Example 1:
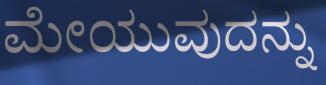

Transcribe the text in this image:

ಮೇಯುವುದನ್ನು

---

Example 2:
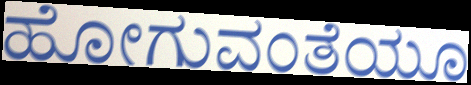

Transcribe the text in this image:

ಹೋಗುವಂತೆಯೂ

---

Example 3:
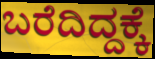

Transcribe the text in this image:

ಬರೆದಿದ್ದಕ್ಕೆ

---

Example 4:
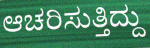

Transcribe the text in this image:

ಆಚರಿಸುತ್ತಿದ್ದು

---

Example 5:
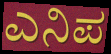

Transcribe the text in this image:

ಎನಿಪ